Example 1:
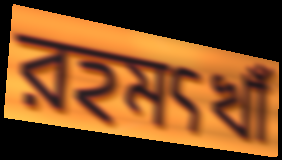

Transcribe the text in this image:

রহমৎখাঁ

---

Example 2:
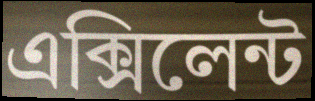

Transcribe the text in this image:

এক্সিলেন্ট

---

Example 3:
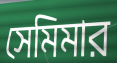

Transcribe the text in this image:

সেমিমার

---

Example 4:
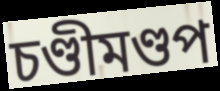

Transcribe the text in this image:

চণ্ডীমণ্ডপ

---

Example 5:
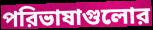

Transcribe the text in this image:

পরিভাষাগুলোর